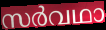
സർവഥാ